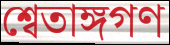
শ্বেতাঙ্গগণ